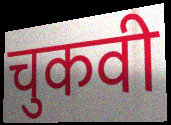
चुकवी